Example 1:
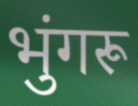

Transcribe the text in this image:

भुंगरू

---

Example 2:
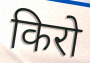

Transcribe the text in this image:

किरो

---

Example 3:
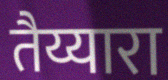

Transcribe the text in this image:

तैय्यारा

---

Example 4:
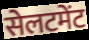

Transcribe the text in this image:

सेलटमेंट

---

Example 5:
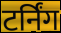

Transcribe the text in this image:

टर्निंग